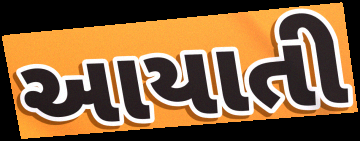
આયાતી